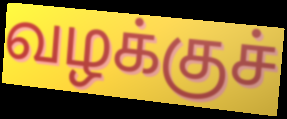
வழக்குச்